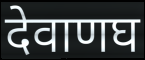
देवाणघ